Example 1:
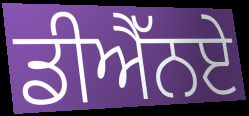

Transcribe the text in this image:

ਡੀਐੱਨਏ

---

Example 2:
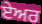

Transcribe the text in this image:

ਏਅਰ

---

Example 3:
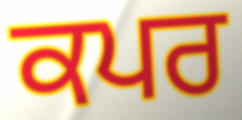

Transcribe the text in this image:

ਕਪਰ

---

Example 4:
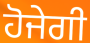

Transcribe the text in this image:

ਹੋਜੇਗੀ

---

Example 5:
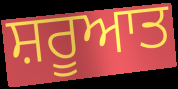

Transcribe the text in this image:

ਸ਼ਰੂਆਤ